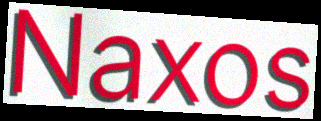
Naxos